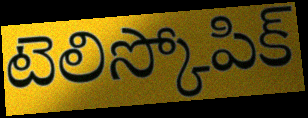
టెలిస్కోపిక్